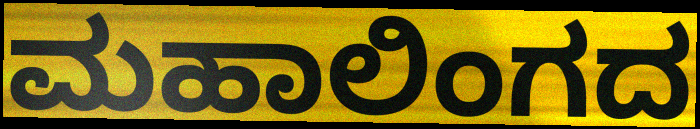
ಮಹಾಲಿಂಗದ